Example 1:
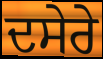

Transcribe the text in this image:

ਦਸੇਰੇ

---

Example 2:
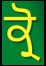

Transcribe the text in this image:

ਕ੍ਰੋ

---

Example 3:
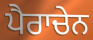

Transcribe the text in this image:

ਪੈਰਾਚੇਨ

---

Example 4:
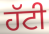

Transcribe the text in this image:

ਹੱਟੀ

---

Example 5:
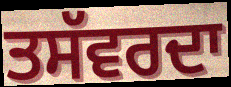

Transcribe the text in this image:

ਤਸੱਵਰਦਾ